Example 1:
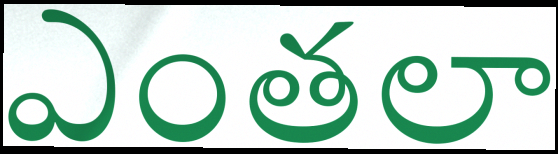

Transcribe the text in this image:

ఎంతలా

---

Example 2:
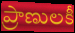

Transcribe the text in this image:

ప్రాణులకీ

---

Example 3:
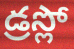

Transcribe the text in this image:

డ్రస్లో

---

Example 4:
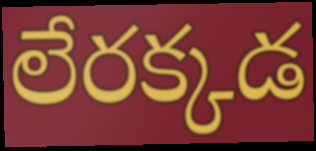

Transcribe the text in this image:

లేరక్కడ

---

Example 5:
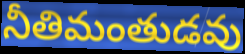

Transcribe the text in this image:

నీతిమంతుడవు